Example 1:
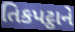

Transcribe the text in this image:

તિકપટ્ઠાને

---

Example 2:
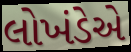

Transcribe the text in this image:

લોખંડેએ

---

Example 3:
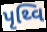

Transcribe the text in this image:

પૃથ્વિ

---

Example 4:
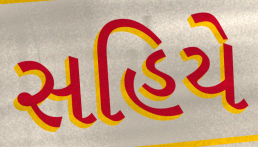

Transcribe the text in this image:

સહિયે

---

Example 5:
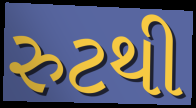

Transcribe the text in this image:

રુટથી